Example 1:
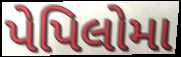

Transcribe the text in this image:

પેપિલોમા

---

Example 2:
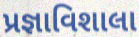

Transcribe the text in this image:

પ્રજ્ઞાવિશાલા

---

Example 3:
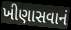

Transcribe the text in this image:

ખીણાસવાનં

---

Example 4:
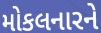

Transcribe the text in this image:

મોકલનારને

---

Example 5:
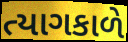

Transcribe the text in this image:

ત્યાગકાળે